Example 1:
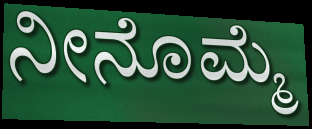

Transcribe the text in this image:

ನೀನೊಮ್ಮೆ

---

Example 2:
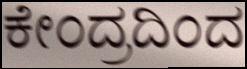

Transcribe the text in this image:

ಕೇಂದ್ರದಿಂದ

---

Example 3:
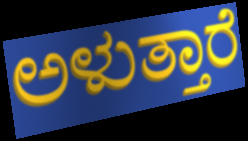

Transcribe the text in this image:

ಅಳುತ್ತಾರೆ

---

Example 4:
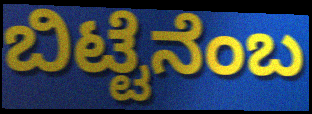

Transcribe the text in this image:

ಬಿಟ್ಟೆನೆಂಬ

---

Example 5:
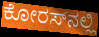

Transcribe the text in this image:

ಕೋರಸ್‌ನಲ್ಲಿ